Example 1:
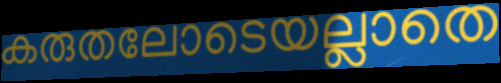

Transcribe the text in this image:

കരുതലോടെയല്ലാതെ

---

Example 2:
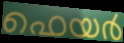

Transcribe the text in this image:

ഫെയർ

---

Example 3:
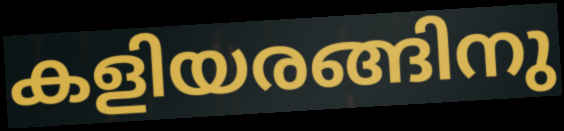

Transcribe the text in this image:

കളിയരങ്ങിനു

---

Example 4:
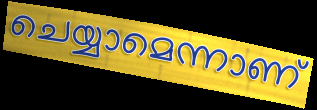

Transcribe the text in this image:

ചെയ്യാമെന്നാണ്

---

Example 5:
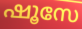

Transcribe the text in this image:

ഷൂസേ